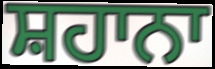
ਸ਼ਹਾਨਾ